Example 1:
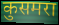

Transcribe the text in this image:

कुसमरा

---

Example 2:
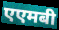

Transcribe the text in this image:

एएमबी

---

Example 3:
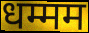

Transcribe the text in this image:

धम्मम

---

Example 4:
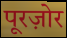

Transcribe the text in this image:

पूरज़ोर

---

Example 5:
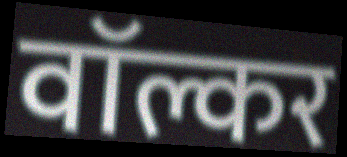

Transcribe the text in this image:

वॉल्कर